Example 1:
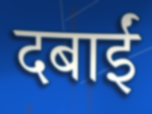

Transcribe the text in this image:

दबाईं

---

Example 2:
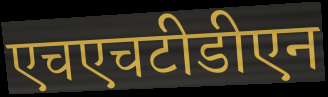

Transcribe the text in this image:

एचएचटीडीएन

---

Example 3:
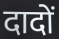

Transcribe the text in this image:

दादों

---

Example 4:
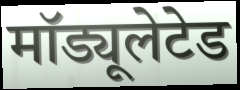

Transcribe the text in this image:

मॉड्यूलेटेड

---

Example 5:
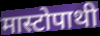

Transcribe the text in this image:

मास्टोपाथी